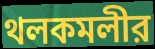
থলকমলীর